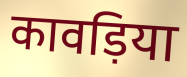
कावड़िया